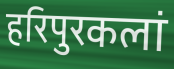
हरिपुरकलां